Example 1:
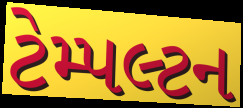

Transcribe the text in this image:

ટેમ્પલ્ટન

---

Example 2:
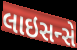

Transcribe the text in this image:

લાઇસન્સે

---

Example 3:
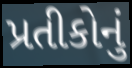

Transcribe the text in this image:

પ્રતીકોનું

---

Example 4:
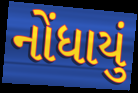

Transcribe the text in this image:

નોંધાયું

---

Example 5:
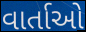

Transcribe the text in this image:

વાર્તાઓ